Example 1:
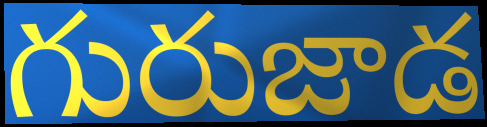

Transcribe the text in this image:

గురుజాడ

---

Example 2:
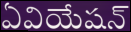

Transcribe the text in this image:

ఏవియేషన్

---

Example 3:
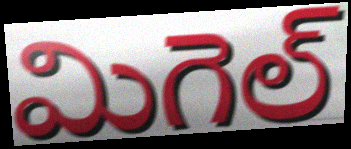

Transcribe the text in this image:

మిగెల్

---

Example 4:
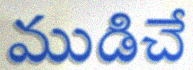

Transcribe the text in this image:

ముడిచే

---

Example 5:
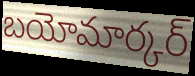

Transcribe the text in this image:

బయోమార్కర్